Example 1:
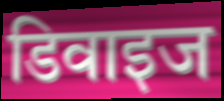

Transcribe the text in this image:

डिवाइज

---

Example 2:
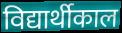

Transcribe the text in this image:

विद्यार्थीकाल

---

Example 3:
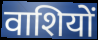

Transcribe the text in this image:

वाशियों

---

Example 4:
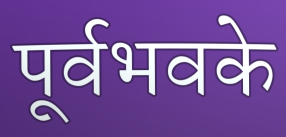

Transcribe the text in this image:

पूर्वभवके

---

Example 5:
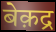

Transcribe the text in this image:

बेक़द्र